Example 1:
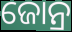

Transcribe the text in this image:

ଜୋନ୍ର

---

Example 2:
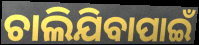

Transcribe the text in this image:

ଚାଲିଯିବାପାଇଁ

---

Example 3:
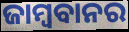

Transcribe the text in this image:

ଜାମ୍ବବାନର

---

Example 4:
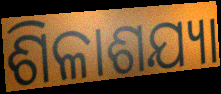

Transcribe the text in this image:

ଶିଳାଶଯ୍ୟା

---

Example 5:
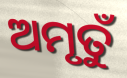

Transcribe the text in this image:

ଅମୃତୁଁ